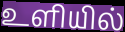
உளியில்